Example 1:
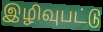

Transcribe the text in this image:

இழிவுபட்டு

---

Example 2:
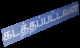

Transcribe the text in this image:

கடத்தப்பட்டவன்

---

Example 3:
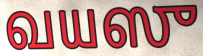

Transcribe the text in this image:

வயஸு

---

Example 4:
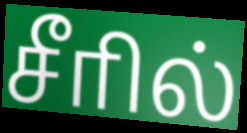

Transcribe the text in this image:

சீரில்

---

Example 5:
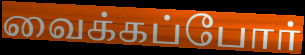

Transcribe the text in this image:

வைக்கப்போர்